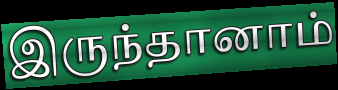
இருந்தானாம்